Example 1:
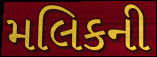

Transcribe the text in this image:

મલિકની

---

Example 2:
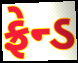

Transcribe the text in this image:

ફ્રેન્ડ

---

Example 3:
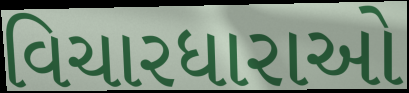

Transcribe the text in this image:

વિચારધારાઓ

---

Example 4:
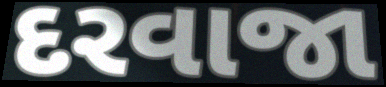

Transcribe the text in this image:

દરવાજા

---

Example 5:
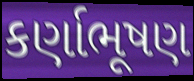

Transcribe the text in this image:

કર્ણાભૂષણ